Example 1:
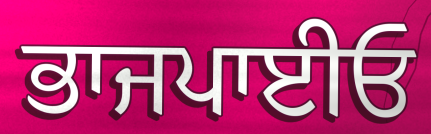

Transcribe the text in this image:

ਭਾਜਪਾਈਓ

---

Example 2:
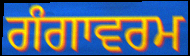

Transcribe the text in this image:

ਗੰਗਾਵਰਮ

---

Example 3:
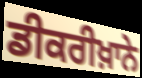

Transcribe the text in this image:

ਡੀਕਰੀਖ਼ਾਨੇ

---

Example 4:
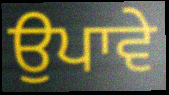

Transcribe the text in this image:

ਉਪਾਵੇ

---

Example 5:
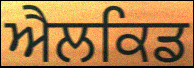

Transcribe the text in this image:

ਐਲਕਿਡ